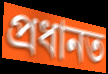
প্রধানত